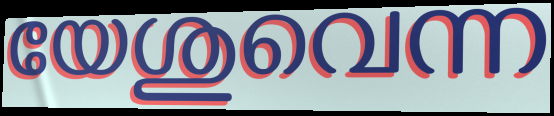
യേശുവെന്ന